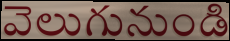
వెలుగునుండి